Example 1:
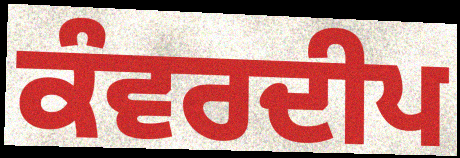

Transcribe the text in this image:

ਕੰਵਰਦੀਪ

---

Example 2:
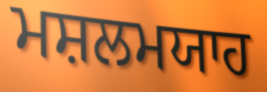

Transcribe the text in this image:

ਮਸ਼ਲਮਯਾਹ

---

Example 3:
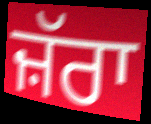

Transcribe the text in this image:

ਜ਼ੱਰਾ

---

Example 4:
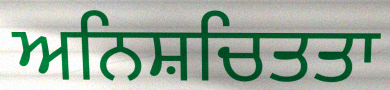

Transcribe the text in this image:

ਅਨਿਸ਼ਚਿਤਤਾ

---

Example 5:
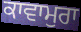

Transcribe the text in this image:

ਕਾਵਾਮੁਰਾ